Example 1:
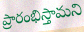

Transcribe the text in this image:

ప్రారంభిస్తామని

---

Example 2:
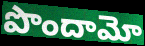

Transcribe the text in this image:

పొందామో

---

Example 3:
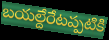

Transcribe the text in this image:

బయల్దేరేటప్పటికి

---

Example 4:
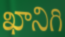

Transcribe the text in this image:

ఖానిగి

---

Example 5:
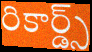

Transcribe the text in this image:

రికార్డ్స్